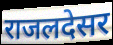
राजलदेसर